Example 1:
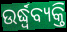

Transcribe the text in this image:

ଉର୍ଦ୍ଧ୍ୱବ୍ୟକ୍ତି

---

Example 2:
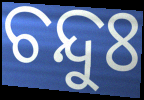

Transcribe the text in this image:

ଚନ୍ଦୁଃ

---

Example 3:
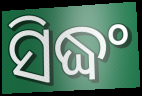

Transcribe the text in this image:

ସିଦ୍ଧଂ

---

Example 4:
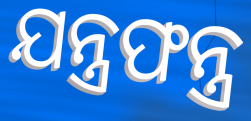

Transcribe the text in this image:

ଯନ୍ତ୍ରଫନ୍ତ୍ର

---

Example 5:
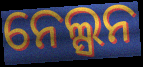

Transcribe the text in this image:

ନେଲ୍ସନ